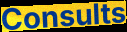
Consults